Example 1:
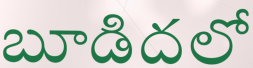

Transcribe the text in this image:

బూడిదలో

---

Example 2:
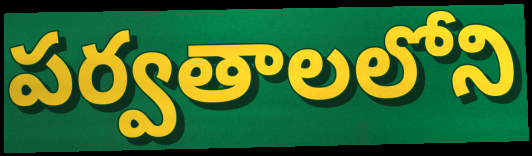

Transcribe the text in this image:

పర్వతాలలోని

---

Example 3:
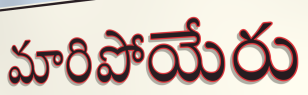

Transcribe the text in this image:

మారిపోయేరు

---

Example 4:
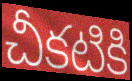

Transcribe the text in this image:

చీకటికి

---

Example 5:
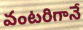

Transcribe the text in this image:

వంటరిగానే